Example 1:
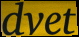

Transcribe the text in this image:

dvet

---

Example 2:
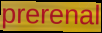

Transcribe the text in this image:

prerenal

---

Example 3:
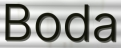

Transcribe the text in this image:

Boda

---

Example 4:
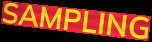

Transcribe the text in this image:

SAMPLING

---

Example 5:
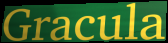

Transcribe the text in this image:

Gracula